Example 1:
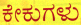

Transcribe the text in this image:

ಕೇಕುಗಳು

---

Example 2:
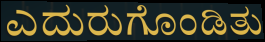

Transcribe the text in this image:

ಎದುರುಗೊಂಡಿತು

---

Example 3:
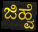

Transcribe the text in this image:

ಜಿಹ್ವೆ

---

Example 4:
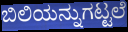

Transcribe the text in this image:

ಬಿಲಿಯನ್ನುಗಟ್ಟಲೆ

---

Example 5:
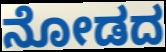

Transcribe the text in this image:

ನೋಡದ